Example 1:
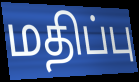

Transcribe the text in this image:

மதிப்பு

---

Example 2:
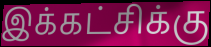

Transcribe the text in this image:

இக்கட்சிக்கு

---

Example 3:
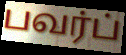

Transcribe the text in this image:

பவர்ப்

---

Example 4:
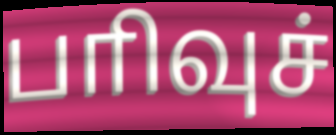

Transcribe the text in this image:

பரிவுச்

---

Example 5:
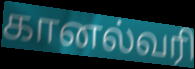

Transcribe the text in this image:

கானல்வரி